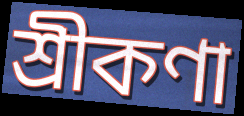
শ্রীকণা